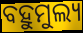
ବହୁମୁଲ୍ୟ